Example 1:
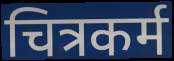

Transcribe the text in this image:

चित्रकर्म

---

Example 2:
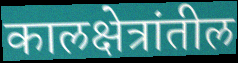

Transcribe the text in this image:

कालक्षेत्रांतील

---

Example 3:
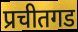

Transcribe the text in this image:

प्रचीतगड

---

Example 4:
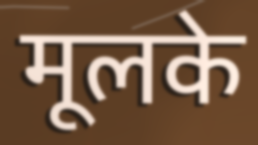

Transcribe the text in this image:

मूलके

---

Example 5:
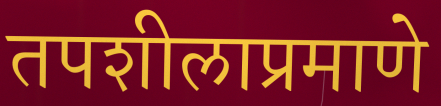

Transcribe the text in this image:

तपशीलाप्रमाणे